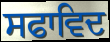
ਸਫਾਵਿਦ